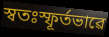
স্বতঃস্ফূৰ্তভাৱে